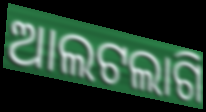
ଆଲଟଲାଗି